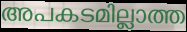
അപകടമില്ലാത്ത